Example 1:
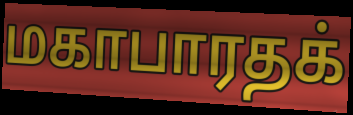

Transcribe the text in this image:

மகாபாரதக்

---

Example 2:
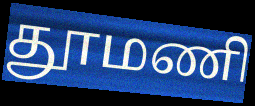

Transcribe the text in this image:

தூமணி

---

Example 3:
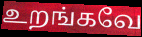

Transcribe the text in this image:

உறங்கவே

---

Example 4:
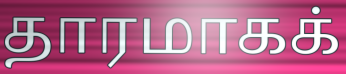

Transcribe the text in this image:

தாரமாகக்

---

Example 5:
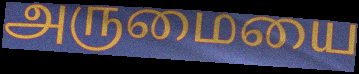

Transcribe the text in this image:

அருமையை